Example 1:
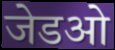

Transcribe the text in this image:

जेडओ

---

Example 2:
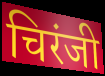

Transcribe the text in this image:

चिरंजी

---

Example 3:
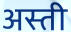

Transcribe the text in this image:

अस्ती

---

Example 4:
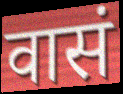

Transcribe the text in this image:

वासं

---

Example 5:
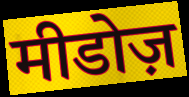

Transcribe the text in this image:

मीडोज़